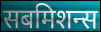
सबमिशन्स